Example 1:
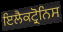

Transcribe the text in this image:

ਇਲੈਕਟ੍ਰੋਨਿਸ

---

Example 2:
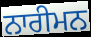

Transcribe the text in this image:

ਨਾਰੀਮਨ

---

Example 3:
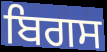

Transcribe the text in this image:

ਬਿਗਸ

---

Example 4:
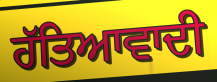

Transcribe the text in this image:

ਹੱਤਿਆਵਾਦੀ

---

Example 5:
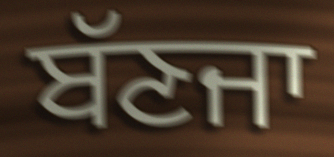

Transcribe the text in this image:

ਬੱਣਜਾ